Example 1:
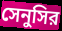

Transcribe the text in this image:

সেনুসির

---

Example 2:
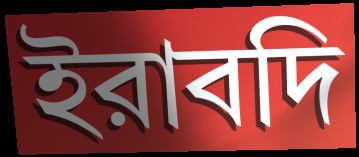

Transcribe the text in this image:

ইরাবদি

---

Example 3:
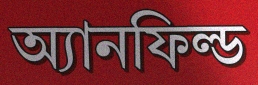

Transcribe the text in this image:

অ্যানফিল্ড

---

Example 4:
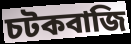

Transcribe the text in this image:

চটকবাজি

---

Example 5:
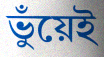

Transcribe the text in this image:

ভুঁয়েই